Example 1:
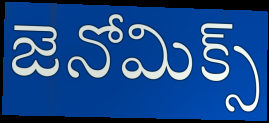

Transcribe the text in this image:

జెనోమిక్స్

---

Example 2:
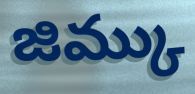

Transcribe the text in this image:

జిమ్కు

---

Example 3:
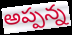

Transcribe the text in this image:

అప్పన్న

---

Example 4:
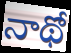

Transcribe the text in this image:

నాథో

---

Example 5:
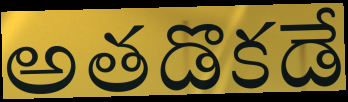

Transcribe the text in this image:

అతడొకడే